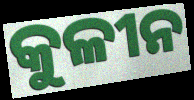
କୁଳୀନ